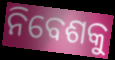
ନିବେଶକୁ